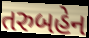
તરુબહેન